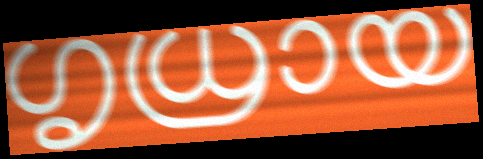
ഗൃധ്രായ